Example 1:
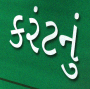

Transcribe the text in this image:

કરંટનું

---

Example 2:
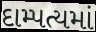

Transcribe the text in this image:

દામ્પત્યમાં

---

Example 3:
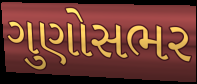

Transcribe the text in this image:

ગુણોસભર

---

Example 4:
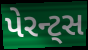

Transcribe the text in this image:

પેરન્ટ્સ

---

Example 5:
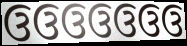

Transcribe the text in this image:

ઉઉઉઉઉઉઉ